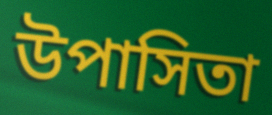
উপাসিতা